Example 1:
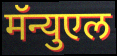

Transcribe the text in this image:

मॅन्युएल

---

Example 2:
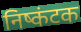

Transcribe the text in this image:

निष्कंटक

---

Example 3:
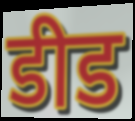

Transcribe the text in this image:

डीड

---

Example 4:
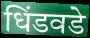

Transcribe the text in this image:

धिंडवडे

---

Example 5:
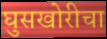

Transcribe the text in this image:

घुसखोरीचा